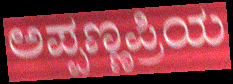
ಅಪ್ಪಣ್ಣಪ್ರಿಯ